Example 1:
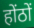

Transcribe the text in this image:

होंठों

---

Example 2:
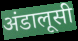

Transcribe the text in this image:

अंडालूसी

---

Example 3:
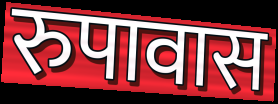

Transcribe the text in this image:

रुपावास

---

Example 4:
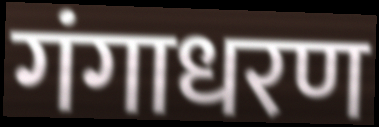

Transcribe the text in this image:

गंगाधरण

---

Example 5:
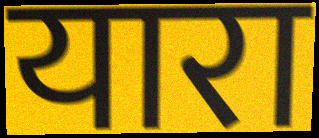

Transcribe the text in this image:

यारा